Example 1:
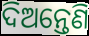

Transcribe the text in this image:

ଦିଅନ୍ତେଣି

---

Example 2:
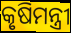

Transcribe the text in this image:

କୃଷିମନ୍ତ୍ରୀ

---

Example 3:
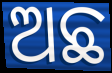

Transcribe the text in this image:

ଅଛ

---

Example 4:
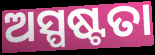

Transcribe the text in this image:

ଅସ୍ପଷ୍ଟତା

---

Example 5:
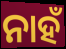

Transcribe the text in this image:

ନାହଁ